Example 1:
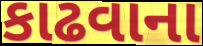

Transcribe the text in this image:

કાઢવાના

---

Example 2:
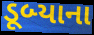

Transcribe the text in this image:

ડૂબ્યાના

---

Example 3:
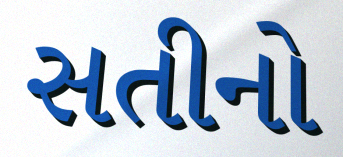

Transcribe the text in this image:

સતીનો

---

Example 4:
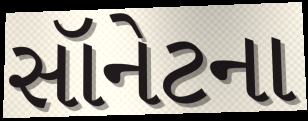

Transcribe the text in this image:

સૉનેટના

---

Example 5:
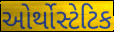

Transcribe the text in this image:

ઓર્થોસ્ટેટિક